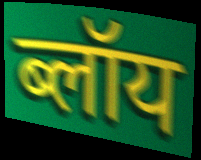
ब्लॉय